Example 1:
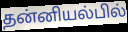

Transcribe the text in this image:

தன்னியல்பில்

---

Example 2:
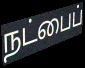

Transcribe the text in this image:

நட்பைப்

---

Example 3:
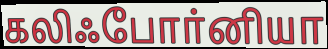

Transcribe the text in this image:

கலிஃபோர்னியா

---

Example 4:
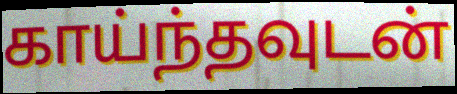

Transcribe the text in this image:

காய்ந்தவுடன்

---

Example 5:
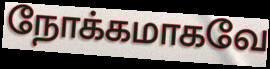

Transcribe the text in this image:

நோக்கமாகவே